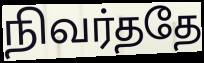
நிவர்ததே